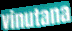
vinutana